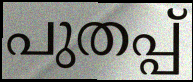
പുതപ്പ്